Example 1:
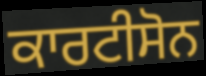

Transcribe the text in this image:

ਕਾਰਟੀਸੋਨ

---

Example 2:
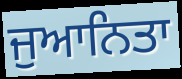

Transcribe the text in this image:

ਜੁਆਨਿਤਾ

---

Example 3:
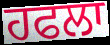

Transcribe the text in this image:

ਹਫਲਾ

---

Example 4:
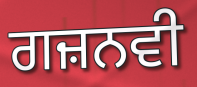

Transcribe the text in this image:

ਗਜ਼ਨਵੀ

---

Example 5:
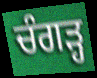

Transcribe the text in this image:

ਚੰਗੜ੍ਹ